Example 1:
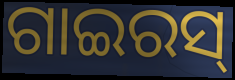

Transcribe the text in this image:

ଗାଇରସ୍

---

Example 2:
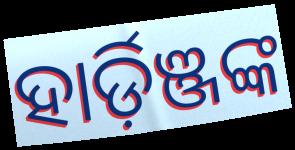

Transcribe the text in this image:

ହାର୍ଡ଼ିଞ୍ଜଙ୍କ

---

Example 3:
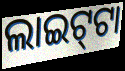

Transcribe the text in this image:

ଲାଇଟ୍‍ଟା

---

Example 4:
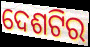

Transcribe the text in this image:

ଦେଶଟିର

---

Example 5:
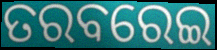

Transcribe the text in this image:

ତରବରେଇ